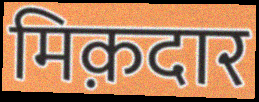
मिक़दार